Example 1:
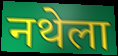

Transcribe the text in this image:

नथेला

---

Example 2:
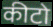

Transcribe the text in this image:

कीटो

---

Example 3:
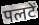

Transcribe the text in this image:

पलटें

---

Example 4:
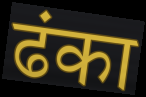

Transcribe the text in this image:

ढंका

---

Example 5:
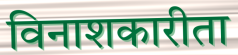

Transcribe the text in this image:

विनाशकारीता